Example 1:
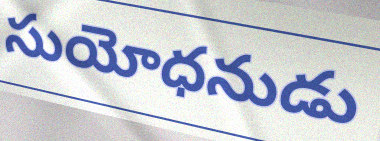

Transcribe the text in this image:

సుయోధనుడు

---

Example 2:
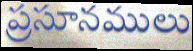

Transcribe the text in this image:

ప్రసూనములు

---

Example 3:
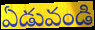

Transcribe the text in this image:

ఏడువండి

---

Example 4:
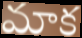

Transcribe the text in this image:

మాక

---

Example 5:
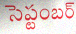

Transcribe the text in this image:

సెప్టంబర్